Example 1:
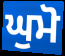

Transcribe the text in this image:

ਘੁਮੋ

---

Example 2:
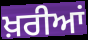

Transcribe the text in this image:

ਖ਼ਰੀਆਂ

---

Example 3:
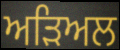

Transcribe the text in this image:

ਅੜਿਅਲ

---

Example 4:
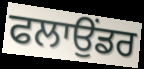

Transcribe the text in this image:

ਫਲਾਉਂਡਰ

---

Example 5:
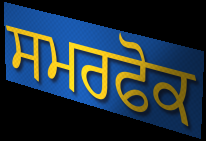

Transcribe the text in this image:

ਸਮਰਫੋਕ